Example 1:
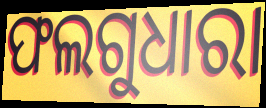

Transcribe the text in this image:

ଫଲଗୁଧାରା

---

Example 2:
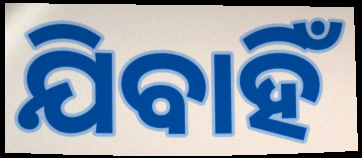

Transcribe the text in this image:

ଯିବାହିଁ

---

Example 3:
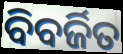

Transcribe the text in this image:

ବିବର୍ଜିତ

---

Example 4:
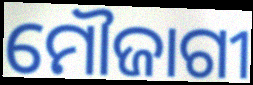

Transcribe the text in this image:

ମୌଜାଗୀ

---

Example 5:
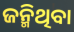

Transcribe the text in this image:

ଜନ୍ମିଥିବା